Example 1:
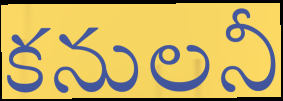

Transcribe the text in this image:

కనులనీ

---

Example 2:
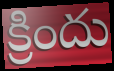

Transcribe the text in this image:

క్రిందు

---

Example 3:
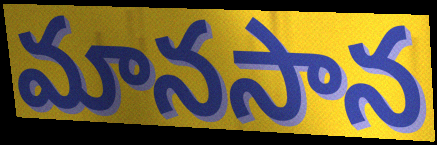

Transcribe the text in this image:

మానసాన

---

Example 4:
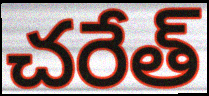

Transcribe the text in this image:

చరేత్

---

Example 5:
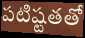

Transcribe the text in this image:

పటిష్టతతో